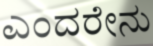
ಎಂದರೇನು